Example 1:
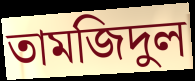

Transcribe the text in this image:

তামজিদুল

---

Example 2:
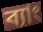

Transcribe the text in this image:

ব্যাং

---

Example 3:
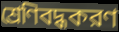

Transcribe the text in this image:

শ্রেণিবদ্ধকরণ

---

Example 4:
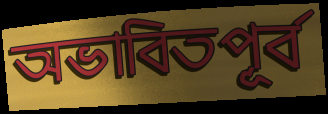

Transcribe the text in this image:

অভাবিতপূর্ব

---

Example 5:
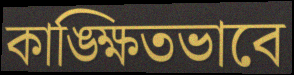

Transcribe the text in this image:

কাঙ্ক্ষিতভাবে